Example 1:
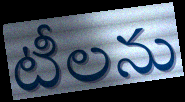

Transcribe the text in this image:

టీలను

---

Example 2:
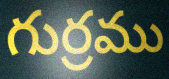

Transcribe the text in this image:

గుర్రము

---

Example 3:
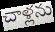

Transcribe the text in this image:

చాళ్లను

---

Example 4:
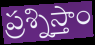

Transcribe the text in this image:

ప్రశ్నిస్తాం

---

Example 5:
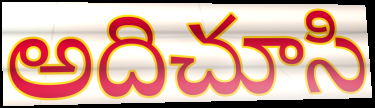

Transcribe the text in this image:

అదిచూసి